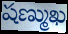
షణ్ముఖ